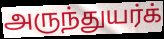
அருந்துயர்க்